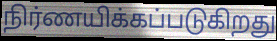
நிர்ணயிக்கப்படுகிறது